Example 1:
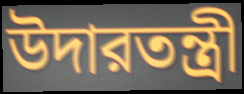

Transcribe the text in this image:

উদারতন্ত্রী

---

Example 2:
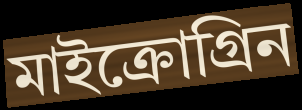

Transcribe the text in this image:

মাইক্রোগ্রিন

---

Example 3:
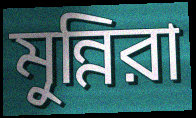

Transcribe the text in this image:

মুন্নিরা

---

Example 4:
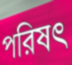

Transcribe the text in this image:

পরিষৎ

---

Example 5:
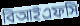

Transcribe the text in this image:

বিআইএফসি